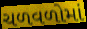
ચળવળોમાં